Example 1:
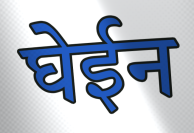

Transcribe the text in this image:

घेईन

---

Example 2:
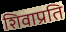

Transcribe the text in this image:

शिवाप्रति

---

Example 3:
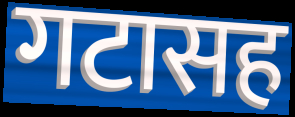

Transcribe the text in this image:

गटासह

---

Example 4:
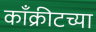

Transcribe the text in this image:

काँक्रीटच्या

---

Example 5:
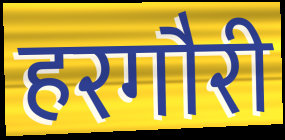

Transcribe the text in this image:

हरगौरी